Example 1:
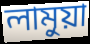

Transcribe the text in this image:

লামুয়া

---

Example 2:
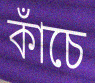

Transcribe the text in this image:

কাঁচে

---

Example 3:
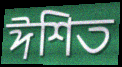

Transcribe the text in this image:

ঈশিত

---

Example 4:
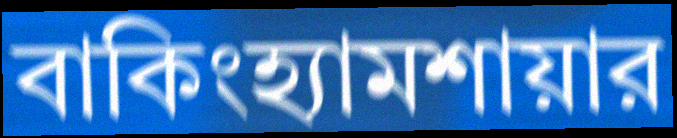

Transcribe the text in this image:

বাকিংহ্যামশায়ার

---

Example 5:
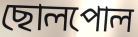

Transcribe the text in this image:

ছোলপোল